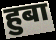
हुबा